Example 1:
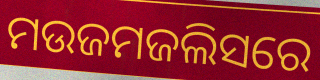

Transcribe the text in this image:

ମଉଜମଜଲିସରେ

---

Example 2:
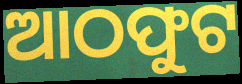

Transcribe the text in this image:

ଆଠଫୁଟ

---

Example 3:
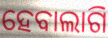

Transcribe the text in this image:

ହେବାଲାଗି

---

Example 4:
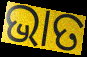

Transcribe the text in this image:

ଭାତ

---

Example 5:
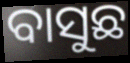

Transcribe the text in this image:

ବାସୁଛ